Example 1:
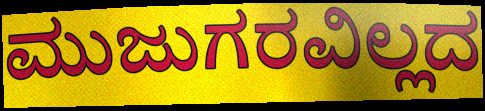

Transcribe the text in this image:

ಮುಜುಗರವಿಲ್ಲದ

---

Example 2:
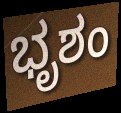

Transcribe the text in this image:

ಭೃಶಂ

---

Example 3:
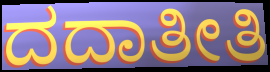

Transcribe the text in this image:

ದದಾತೀತಿ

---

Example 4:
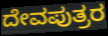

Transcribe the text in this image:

ದೇವಪುತ್ರರ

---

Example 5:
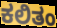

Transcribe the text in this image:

ಕಲಿತಂ